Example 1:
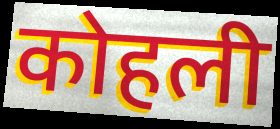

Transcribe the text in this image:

कोहली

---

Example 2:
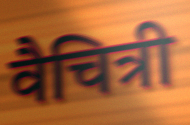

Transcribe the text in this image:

वैचित्री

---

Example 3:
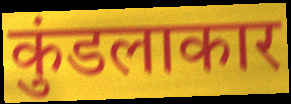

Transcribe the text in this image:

कुंडलाकार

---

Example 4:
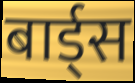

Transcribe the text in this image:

बार्ड्स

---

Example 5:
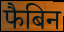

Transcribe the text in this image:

फैबिन